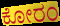
ಕೋರಂ